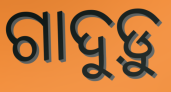
ଗାଦୁଡ଼ୁ